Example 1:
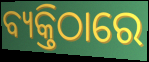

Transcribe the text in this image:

ବ୍ୟକ୍ତିଠାରେ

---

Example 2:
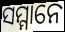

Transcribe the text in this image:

ସମ୍ମାନେ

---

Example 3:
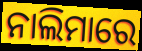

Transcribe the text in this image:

ନାଲିମାରେ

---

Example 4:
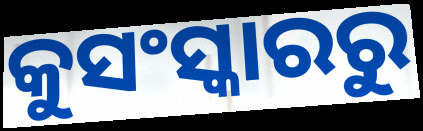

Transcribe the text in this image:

କୁସଂସ୍କାରରୁ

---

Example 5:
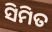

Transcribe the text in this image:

ସିମିତ